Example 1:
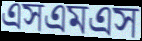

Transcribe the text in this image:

এসএমএস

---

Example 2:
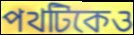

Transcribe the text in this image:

পথটিকেও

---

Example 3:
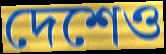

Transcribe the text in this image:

দেশেও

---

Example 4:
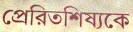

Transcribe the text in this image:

প্রেরিতশিষ্যকে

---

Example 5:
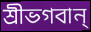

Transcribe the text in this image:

শ্রীভগবান্